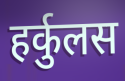
हर्कुलस